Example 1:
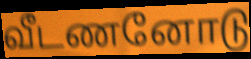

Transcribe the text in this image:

வீடணனோடு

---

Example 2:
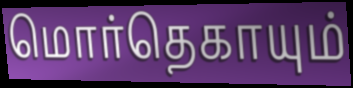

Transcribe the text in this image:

மொர்தெகாயும்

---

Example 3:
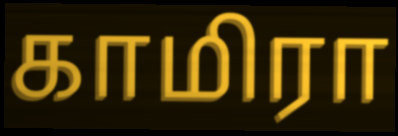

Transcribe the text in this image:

காமிரா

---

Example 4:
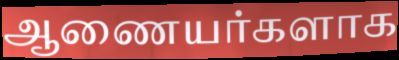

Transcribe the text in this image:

ஆணையர்களாக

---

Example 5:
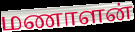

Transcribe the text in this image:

மணாளன்